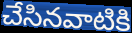
చేసినవాటికి